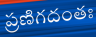
ప్రణిగదంతః